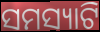
ସମସ୍ୟାଟି